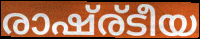
രാഷ്ര്ടീയ